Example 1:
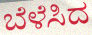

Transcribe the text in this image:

ಬೆಳೆಸಿದ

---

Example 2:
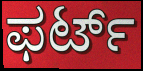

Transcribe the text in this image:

ಫರ್ಟ್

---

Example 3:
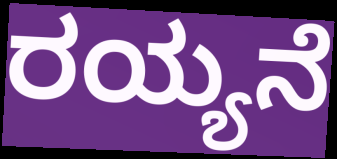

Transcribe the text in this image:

ರಯ್ಯನೆ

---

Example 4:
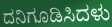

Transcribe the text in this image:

ದನಿಗೂಡಿಸಿದಳು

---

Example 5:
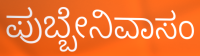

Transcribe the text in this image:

ಪುಬ್ಬೇನಿವಾಸಂ